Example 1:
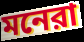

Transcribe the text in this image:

মনেরা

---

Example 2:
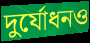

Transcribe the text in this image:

দুর্যোধনও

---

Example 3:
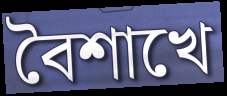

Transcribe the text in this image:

বৈশাখে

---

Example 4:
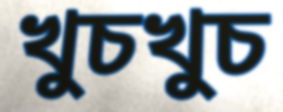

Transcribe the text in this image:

খুচখুচ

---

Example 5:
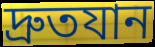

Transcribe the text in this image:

দ্রুতযান